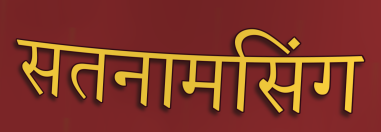
सतनामसिंग